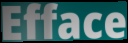
Efface